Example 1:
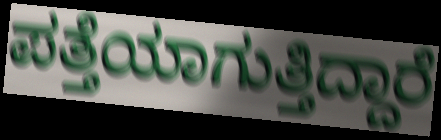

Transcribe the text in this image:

ಪತ್ತೆಯಾಗುತ್ತಿದ್ದಾರೆ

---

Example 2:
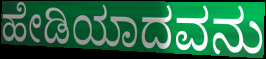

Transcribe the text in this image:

ಹೇಡಿಯಾದವನು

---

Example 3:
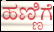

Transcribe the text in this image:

ಹಣ್ಣಿಗೆ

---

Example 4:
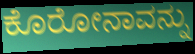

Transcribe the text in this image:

ಕೊರೋನಾವನ್ನು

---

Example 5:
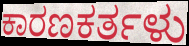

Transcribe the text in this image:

ಕಾರಣಕರ್ತಳು